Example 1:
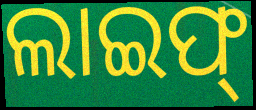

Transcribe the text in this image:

ଲାଇଫ୍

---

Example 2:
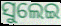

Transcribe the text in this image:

ସୁଲେଇ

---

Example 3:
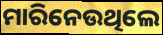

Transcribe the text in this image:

ମାରିନେଉଥିଲେ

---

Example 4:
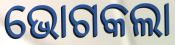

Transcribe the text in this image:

ଭୋଗକଲା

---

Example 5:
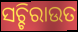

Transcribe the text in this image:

ସଚ୍ଚିରାଉତ